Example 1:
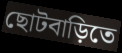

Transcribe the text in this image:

ছোটবাড়িতে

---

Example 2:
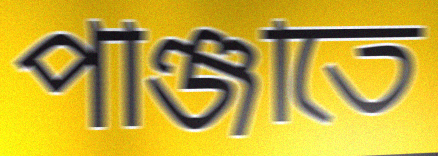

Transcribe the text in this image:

পাঞ্জাতে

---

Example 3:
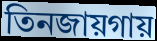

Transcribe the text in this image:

তিনজায়গায়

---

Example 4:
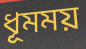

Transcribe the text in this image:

ধূমময়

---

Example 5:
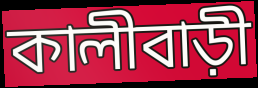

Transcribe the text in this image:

কালীবাড়ী